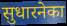
सुधारनेका